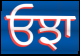
ਓਝਾ